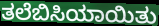
ತಲೆಬಿಸಿಯಾಯಿತು